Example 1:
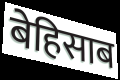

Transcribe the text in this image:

बेहिसाब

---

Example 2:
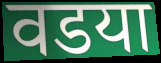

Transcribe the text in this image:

वडया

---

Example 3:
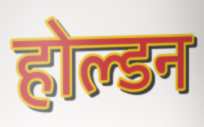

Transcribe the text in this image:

होल्डन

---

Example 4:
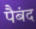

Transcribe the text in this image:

पैबंद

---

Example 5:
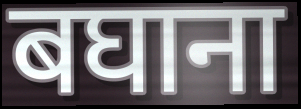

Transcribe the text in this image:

बघाना